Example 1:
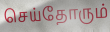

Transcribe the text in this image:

செய்தோரும்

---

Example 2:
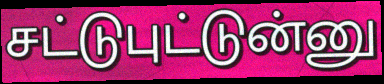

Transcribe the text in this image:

சட்டுபுட்டுன்னு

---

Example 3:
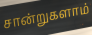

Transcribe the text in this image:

சான்றுகளாம்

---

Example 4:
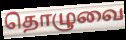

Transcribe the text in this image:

தொழுவை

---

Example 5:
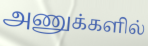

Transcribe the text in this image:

அணுக்களில்